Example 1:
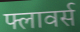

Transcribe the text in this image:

फ्लावर्स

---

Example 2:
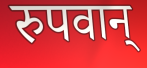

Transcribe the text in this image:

रुपवान्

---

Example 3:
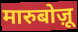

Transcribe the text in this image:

मारुबोज़ू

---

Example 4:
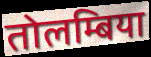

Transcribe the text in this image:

तोलम्बिया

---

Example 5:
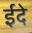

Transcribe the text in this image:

ईदे